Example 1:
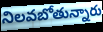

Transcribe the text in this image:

నిలవబోతున్నారు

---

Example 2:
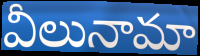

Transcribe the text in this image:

వీలునామా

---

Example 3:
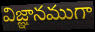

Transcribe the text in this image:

విజ్ఞానముగా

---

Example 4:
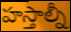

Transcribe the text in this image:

హస్తాల్నీ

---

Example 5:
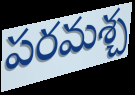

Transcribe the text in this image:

పరమశ్చ